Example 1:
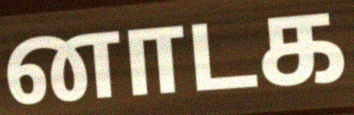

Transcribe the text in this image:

னாடக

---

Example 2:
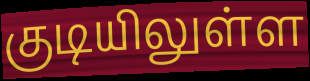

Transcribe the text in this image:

குடியிலுள்ள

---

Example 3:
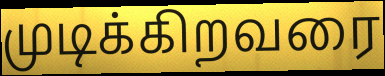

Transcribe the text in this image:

முடிக்கிறவரை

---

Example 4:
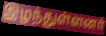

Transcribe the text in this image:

இழந்துள்ளனர்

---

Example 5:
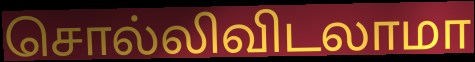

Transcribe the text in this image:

சொல்லிவிடலாமா